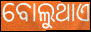
ବୋଲୁଥାଏ